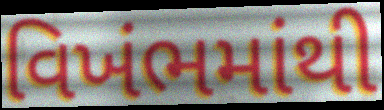
વિખંભમાંથી